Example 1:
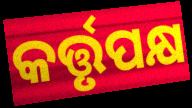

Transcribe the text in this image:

କର୍ତ୍ତୃପକ୍ଷ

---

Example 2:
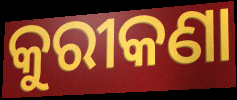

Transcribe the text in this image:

କୁରୀକଣା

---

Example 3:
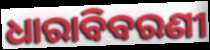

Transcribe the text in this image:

ଧାରାବିବରଣୀ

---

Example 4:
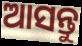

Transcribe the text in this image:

ଆସନ୍ତୁ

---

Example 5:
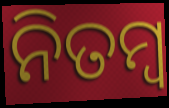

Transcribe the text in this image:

ନିତମ୍ୱ